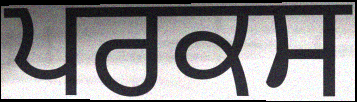
ਪਰਕਸ